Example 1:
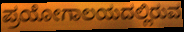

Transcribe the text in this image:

ಪ್ರಯೋಗಾಲಯದಲ್ಲಿರುವ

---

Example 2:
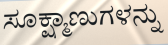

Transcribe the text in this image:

ಸೂಕ್ಷ್ಮಾಣುಗಳನ್ನು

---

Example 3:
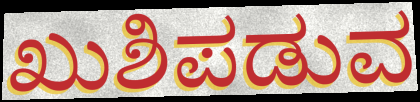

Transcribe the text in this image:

ಖುಶಿಪಡುವ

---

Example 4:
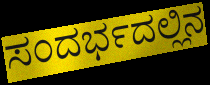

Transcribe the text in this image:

ಸಂದರ್ಭದಲ್ಲಿನ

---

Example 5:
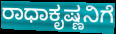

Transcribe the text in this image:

ರಾಧಾಕೃಷ್ಣನಿಗೆ